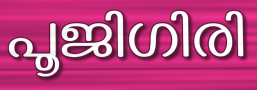
പൂജിഗിരി